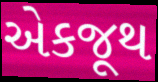
એકજૂથ